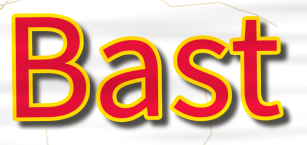
Bast